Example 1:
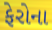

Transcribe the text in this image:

ફેરોના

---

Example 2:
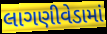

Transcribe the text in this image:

લાગણીવેડામાં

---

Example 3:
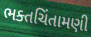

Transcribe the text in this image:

ભક્તચિંતામણી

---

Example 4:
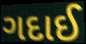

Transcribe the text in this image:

ગદાઈ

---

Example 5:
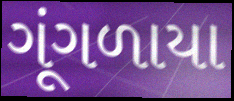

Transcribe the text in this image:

ગૂંગળાયા